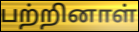
பற்றினாள்